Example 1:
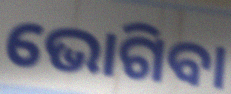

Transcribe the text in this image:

ଭୋଗିବା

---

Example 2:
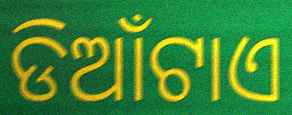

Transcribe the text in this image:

ଡିଆଁଟାଏ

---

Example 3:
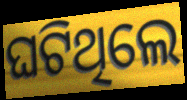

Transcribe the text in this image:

ଘଟିଥିଲେ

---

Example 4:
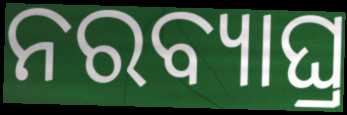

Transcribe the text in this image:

ନରବ୍ୟାଘ୍ର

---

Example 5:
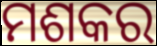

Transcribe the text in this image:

ମଶକର